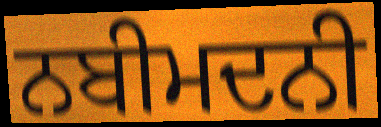
ਨਬੀਮਦਨੀ